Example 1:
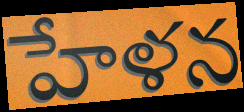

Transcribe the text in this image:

హేళన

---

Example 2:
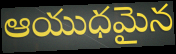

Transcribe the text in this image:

ఆయుధమైన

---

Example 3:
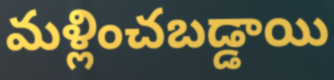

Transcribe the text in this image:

మళ్లించబడ్డాయి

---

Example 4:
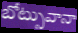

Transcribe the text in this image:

బోట్సువానా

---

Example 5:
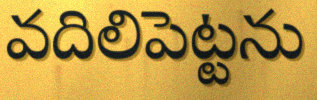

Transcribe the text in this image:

వదిలిపెట్టను